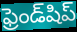
ఫ్రెండ్‌షిప్